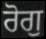
ਰੋਗੁ